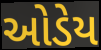
ઓડેય